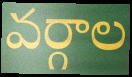
వర్గాల